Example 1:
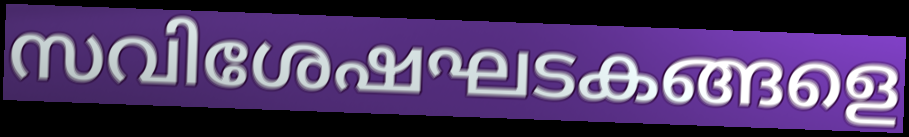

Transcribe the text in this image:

സവിശേഷഘടകങ്ങളെ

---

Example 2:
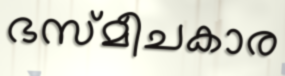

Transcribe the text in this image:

ഭസ്മീചകാര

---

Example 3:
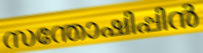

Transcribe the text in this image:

സന്തോഷിപ്പിൻ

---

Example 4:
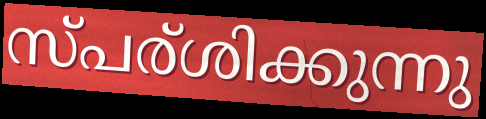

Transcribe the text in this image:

സ്പര്ശിക്കുന്നു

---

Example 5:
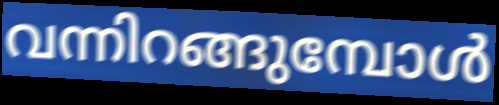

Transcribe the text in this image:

വന്നിറങ്ങുമ്പോൾ